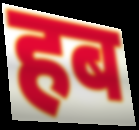
हब